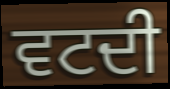
ਵਟਦੀ